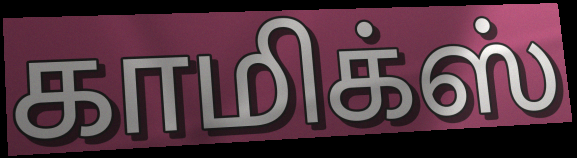
காமிக்ஸ்